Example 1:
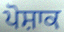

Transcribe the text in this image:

ਪੋਸ਼ਾਕ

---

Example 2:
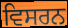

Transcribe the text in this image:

ਵਿਸਰਨ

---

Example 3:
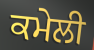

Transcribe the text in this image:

ਕਮੇਲੀ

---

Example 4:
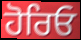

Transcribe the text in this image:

ਹੋਰਿਓ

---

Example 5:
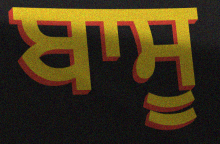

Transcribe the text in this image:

ਬਾਸੂ